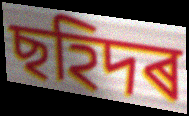
ছহিদৰ